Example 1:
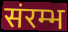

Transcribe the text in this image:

संरम्भ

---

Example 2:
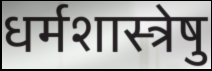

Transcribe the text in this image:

धर्मशास्त्रेषु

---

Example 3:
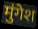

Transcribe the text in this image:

मुंगेश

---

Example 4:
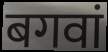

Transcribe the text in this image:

बगवां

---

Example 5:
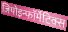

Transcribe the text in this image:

जियोइन्फॉर्मेटिक्स